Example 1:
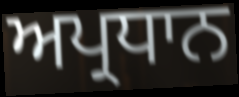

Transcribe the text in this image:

ਅਪ੍ਰਧਾਨ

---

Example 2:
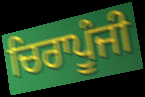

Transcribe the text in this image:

ਚਿਰਾਪੂੰਜੀ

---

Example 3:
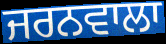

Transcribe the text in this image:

ਜਰਨਵਾਲਾ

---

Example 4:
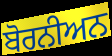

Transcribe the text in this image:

ਬੋਰਨੀਅਨ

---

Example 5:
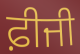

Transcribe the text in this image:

ਫ਼ੀਜੀ